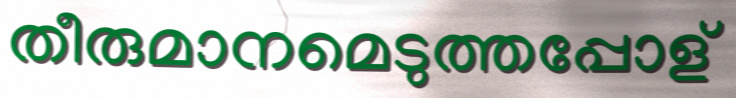
തീരുമാനമെടുത്തപ്പോള്